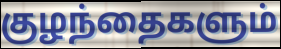
குழந்தைகளும்